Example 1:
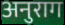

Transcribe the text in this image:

अनुराग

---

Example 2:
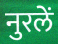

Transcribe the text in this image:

नुरलें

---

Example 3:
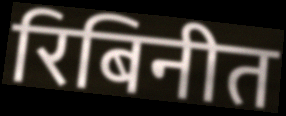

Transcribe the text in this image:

रिबिनीत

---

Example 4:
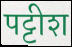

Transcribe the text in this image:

पट्टीश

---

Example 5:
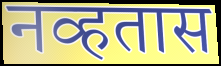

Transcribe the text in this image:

नव्हतास